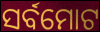
ସର୍ବମୋଟ